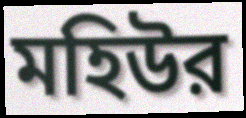
মহিউর